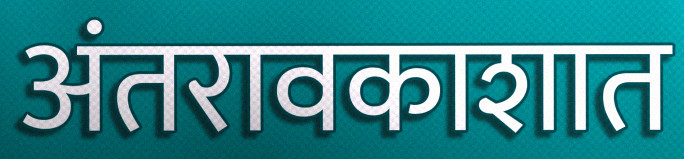
अंतरावकाशात